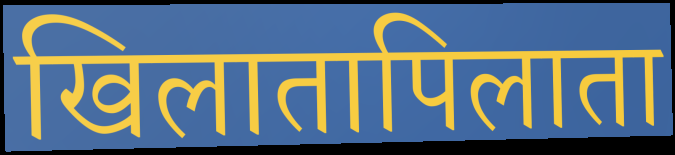
खिलातापिलाता